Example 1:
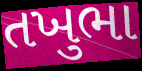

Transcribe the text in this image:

તખુભા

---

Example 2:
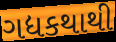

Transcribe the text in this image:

ગદ્યકથાથી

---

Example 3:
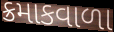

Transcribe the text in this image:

ક્રમાકવાળા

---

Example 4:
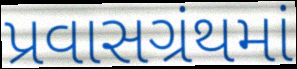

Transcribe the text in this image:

પ્રવાસગ્રંથમાં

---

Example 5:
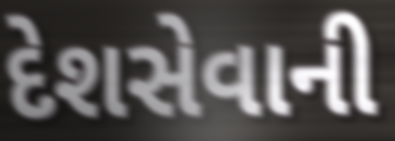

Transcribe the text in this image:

દેશસેવાની